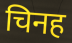
चिनह